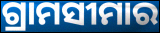
ଗ୍ରାମସୀମାର